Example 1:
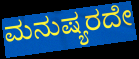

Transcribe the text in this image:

ಮನುಷ್ಯರದೇ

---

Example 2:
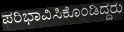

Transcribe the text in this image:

ಪರಿಭಾವಿಸಿಕೊಂಡಿದ್ದರು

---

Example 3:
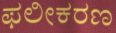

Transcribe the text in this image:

ಫಲೀಕರಣ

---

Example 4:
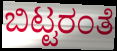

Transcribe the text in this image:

ಬಿಟ್ಟರಂತೆ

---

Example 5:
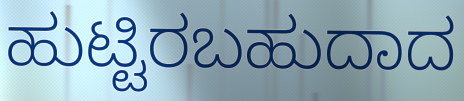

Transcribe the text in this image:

ಹುಟ್ಟಿರಬಹುದಾದ